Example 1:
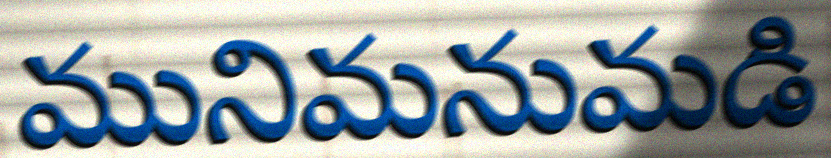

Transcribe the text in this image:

మునిమనుమడి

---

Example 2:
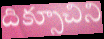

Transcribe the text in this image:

దిక్సూచిని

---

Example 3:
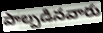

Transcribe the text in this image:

పాల్పడినవారు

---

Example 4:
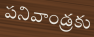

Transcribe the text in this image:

పనివాండ్రకు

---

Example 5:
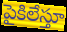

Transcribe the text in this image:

పైకిలేస్తూ